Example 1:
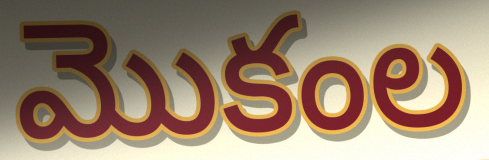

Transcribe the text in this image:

మొకంల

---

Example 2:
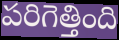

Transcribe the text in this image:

పరిగెత్తింది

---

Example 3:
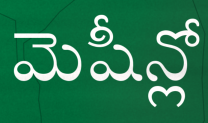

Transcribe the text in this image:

మెషీన్లో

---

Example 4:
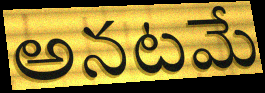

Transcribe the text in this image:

అనటమే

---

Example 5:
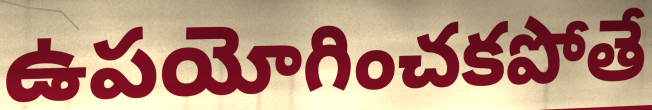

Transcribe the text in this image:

ఉపయోగించకపోతే